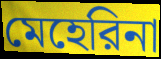
মেহেরিনা